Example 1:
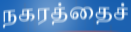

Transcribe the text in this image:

நகரத்தைச்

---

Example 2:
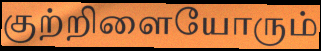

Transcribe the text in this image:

குற்றிளையோரும்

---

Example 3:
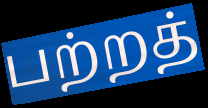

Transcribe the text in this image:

பற்றத்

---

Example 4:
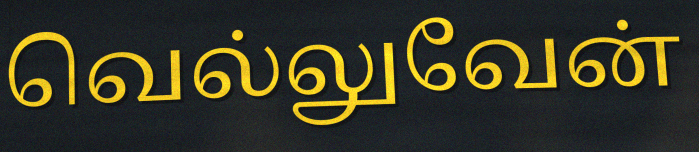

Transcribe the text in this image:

வெல்லுவேன்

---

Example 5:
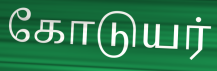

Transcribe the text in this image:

கோடுயர்